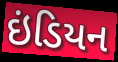
ઇંડિયન